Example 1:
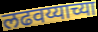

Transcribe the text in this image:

लढवय्याच्या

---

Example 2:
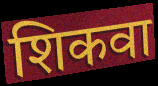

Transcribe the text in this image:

शिकवा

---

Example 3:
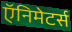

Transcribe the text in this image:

ऍनिमेटर्स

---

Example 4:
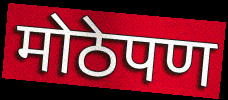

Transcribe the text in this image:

मोठेपण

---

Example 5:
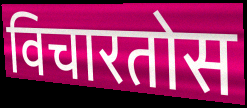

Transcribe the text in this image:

विचारतोस